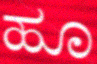
ಹೂ